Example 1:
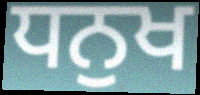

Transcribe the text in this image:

ਧਨੁਖ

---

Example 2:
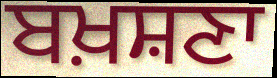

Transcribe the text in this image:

ਬਖ਼ਸ਼ਣਾ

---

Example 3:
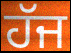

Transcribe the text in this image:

ਹੱਜ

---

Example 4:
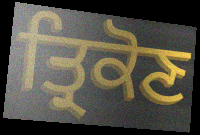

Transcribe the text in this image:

ਤ੍ਰਿਕੋਣ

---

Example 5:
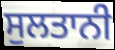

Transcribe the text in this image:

ਸੁਲਤਾਨੀ